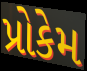
પ્રોકેમ